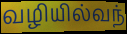
வழியில்வந்